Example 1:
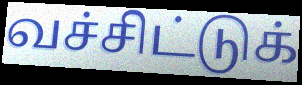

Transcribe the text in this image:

வச்சிட்டுக்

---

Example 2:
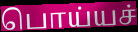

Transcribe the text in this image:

பொய்யச்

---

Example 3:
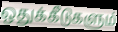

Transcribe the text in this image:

ஒதுக்கீடுகளும்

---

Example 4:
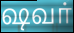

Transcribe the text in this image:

ஷவர்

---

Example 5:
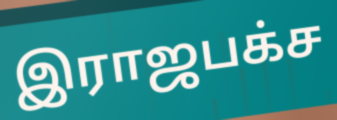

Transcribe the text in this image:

இராஜபக்ச